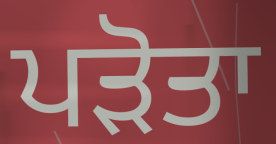
ਪੜੋਤਾ